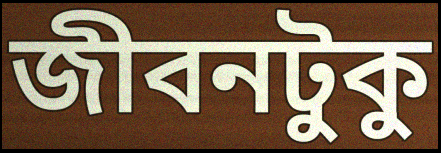
জীবনটুকু